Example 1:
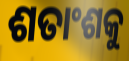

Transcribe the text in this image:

ଶତାଂଶକୁ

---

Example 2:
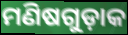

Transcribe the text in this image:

ମଣିଷଗୁଡ଼ାକ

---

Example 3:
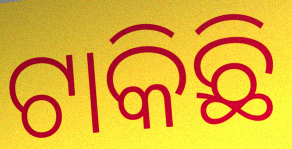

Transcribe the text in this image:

ଟାକିଛି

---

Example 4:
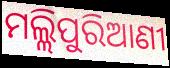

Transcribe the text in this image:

ମଲ୍ଲିପୁରିଆଣୀ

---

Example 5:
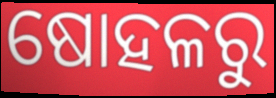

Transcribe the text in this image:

ଷୋହଳରୁ